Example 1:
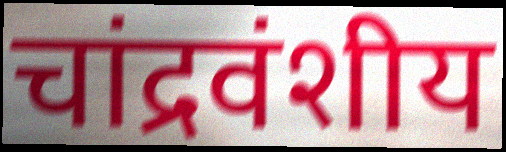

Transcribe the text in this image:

चांद्रवंशीय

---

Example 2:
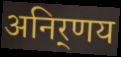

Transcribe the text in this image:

अनिर्णय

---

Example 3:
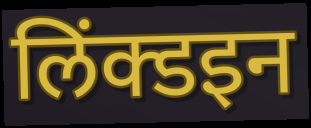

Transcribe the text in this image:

लिंक्डइन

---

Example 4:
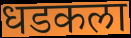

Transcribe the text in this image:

धडकला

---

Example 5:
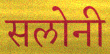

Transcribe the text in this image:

सलोनी